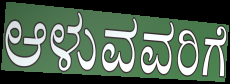
ಆಳುವವರಿಗೆ